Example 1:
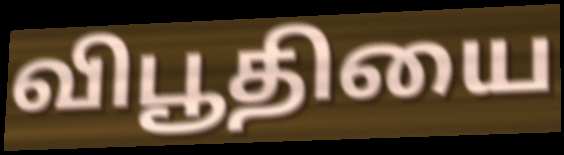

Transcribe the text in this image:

விபூதியை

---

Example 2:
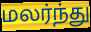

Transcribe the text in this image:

மலர்ந்து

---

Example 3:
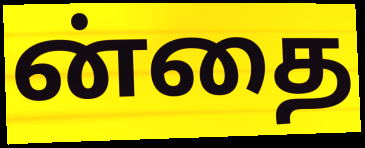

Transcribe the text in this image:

ன்தை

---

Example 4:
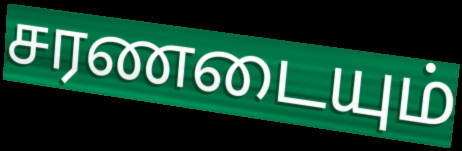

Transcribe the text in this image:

சரணடையும்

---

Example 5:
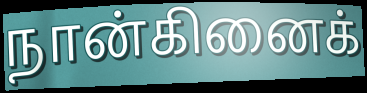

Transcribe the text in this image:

நான்கினைக்